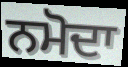
ਨਮੋਦਾ